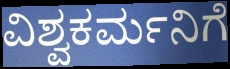
ವಿಶ್ವಕರ್ಮನಿಗೆ